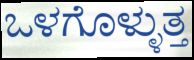
ಒಳಗೊಳ್ಳುತ್ತ